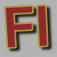
FI